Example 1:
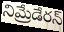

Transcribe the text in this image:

నిమ్రేడేరన్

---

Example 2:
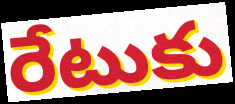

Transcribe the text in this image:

రేటుకు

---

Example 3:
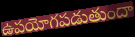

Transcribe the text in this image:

ఉపయోగపడుతుందా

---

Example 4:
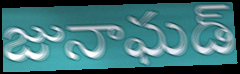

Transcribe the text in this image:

జునాఘడ్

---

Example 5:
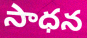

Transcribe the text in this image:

సాధన